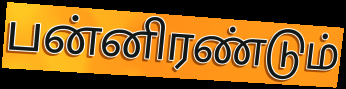
பன்னிரண்டும்